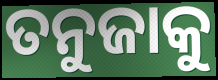
ତନୁଜାକୁ